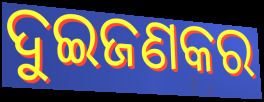
ଦୁଇଜଣକର